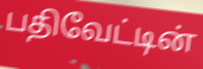
பதிவேட்டின்